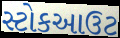
સ્ટોકઆઉટ